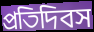
প্রতিদিবস